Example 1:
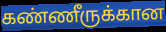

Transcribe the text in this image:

கண்ணீருக்கான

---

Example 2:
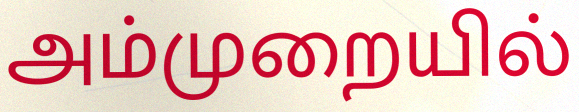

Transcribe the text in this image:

அம்முறையில்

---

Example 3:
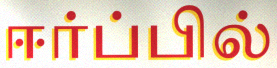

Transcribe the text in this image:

ஈர்ப்பில்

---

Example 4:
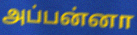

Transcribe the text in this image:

அப்பன்னா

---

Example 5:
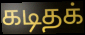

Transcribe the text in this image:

கடிதக்